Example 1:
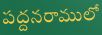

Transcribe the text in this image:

పద్దనరాములో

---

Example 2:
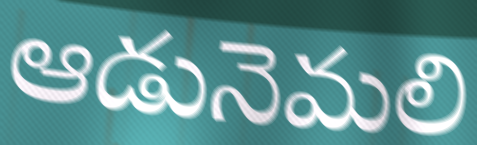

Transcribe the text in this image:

ఆడునెమలి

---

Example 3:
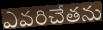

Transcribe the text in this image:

ఎవరిచేతను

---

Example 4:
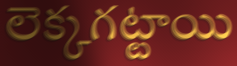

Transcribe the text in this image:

లెక్కగట్టాయి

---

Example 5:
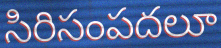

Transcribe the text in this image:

సిరిసంపదలూ